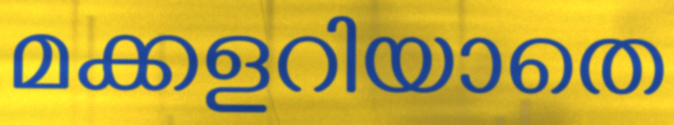
മക്കളറിയാതെ